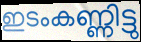
ഇടംകണ്ണിട്ടു